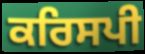
ਕਰਿਸਪੀ